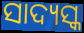
ସାଦ୍ୟସ୍କ